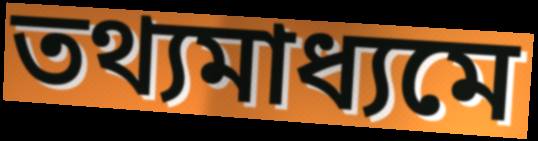
তথ্যমাধ্যমে